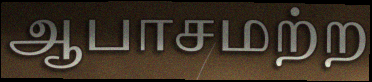
ஆபாசமற்ற